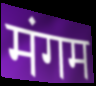
मंगम